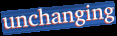
unchanging